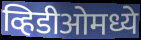
व्हिडीओमध्ये